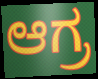
ಆಗ್ರ